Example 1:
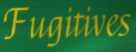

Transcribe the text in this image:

Fugitives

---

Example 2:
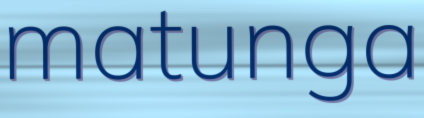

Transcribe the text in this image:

matunga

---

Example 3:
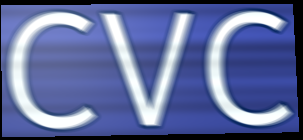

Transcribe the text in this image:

CVC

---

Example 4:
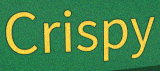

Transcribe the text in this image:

Crispy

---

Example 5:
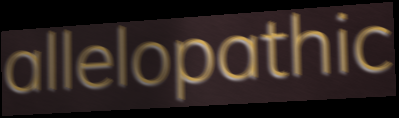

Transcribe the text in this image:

allelopathic